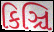
કિઞ્ચિ